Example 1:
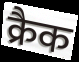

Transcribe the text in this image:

क्रैक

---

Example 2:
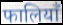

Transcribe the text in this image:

फालियाँ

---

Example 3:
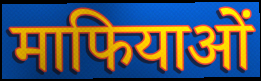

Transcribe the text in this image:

माफियाओं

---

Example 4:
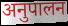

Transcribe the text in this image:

अनुपालन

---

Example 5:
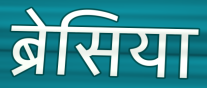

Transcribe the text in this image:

ब्रेसिया